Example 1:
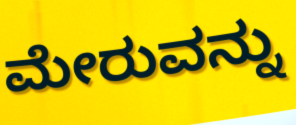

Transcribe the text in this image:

ಮೇರುವನ್ನು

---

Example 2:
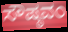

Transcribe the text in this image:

ಸೌಷ್ಠವಂ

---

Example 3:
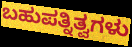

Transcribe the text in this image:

ಬಹುಪತ್ನಿತ್ವಗಳು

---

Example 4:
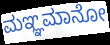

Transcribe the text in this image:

ಮಞ್ಞಮಾನೋ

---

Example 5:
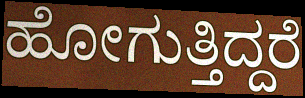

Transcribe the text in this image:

ಹೋಗುತ್ತಿದ್ದರೆ